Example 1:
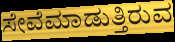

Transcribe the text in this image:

ಸೇವೆಮಾಡುತ್ತಿರುವ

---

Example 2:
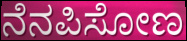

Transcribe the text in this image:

ನೆನಪಿಸೋಣ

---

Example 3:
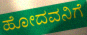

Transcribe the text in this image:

ಹೋದವನಿಗೆ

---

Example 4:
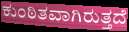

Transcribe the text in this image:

ಕುಂಠಿತವಾಗಿರುತ್ತದೆ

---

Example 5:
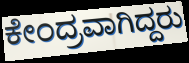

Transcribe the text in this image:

ಕೇಂದ್ರವಾಗಿದ್ದರು